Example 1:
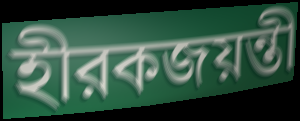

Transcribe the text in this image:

হীরকজয়ন্তী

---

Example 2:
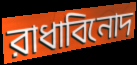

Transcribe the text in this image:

রাধাবিনোদ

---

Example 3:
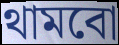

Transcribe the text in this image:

থামবো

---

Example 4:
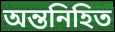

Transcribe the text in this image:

অন্তনিহিত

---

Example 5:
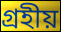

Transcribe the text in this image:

গ্রহীয়